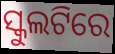
ସ୍କୁଲଟିରେ